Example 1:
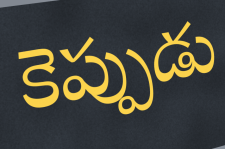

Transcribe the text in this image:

కెప్పుడు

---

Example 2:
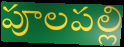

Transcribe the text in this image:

పూలపల్లి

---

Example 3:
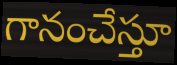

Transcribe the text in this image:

గానంచేస్తూ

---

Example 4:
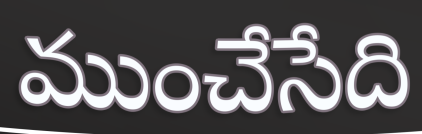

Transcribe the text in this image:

ముంచేసేది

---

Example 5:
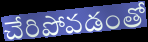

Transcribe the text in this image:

చేరిపోవడంతో